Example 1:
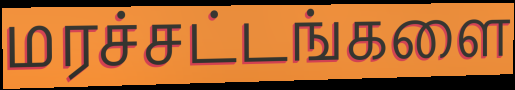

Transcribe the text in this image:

மரச்சட்டங்களை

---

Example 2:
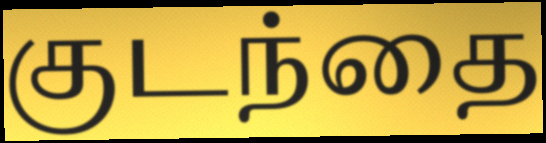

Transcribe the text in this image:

குடந்தை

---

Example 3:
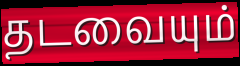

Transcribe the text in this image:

தடவையும்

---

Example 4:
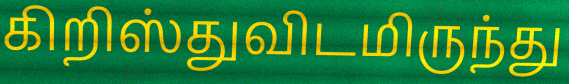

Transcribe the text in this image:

கிறிஸ்துவிடமிருந்து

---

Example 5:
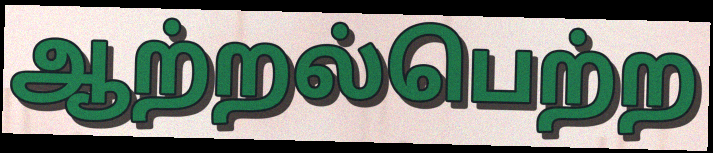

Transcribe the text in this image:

ஆற்றல்பெற்ற